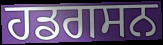
ਹਡਗਸਨ